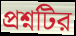
প্রশ্নটির